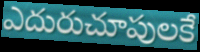
ఎదురుచూపులకే